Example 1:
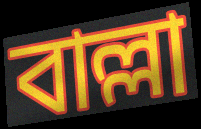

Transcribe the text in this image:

বাল্লা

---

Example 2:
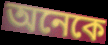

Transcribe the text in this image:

অনেকে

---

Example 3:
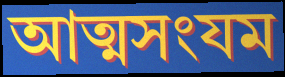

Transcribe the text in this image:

আত্মসংযম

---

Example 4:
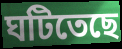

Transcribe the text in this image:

ঘটিতেছে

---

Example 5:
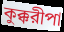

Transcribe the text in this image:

কুক্করীপা